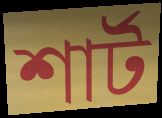
শার্ট